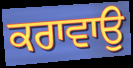
ਕਰਾਵਾਉ